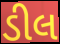
ડીલ